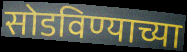
सोडविण्याच्या